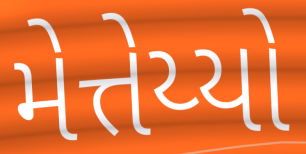
મેત્તેય્યો